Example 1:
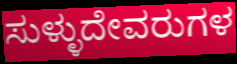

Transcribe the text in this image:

ಸುಳ್ಳುದೇವರುಗಳ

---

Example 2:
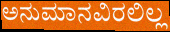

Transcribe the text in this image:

ಅನುಮಾನವಿರಲಿಲ್ಲ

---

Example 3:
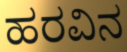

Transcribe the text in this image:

ಹರವಿನ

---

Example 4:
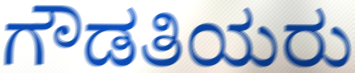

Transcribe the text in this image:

ಗೌಡತಿಯರು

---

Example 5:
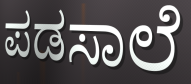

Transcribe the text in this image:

ಪಡಸಾಲೆ